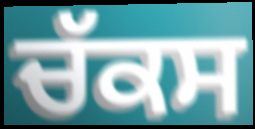
ਚੱਕਸ